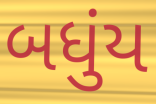
બધુંય